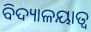
ବିଦ୍ୟାଳୟାତ୍ବ